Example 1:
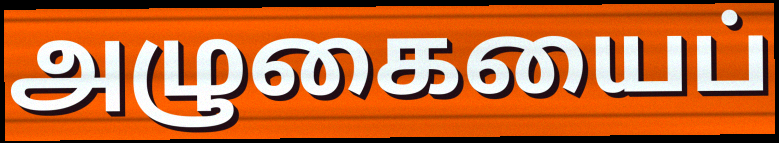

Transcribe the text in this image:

அழுகையைப்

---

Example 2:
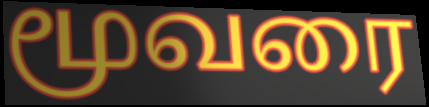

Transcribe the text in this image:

மூவரை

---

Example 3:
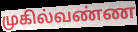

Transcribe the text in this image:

முகில்வண்ண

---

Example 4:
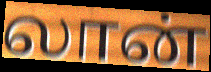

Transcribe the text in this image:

லான்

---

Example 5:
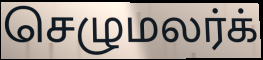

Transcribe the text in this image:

செழுமலர்க்